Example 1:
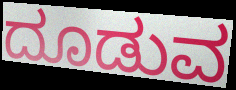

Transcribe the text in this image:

ದೂಡುವ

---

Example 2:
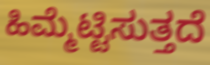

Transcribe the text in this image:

ಹಿಮ್ಮೆಟ್ಟಿಸುತ್ತದೆ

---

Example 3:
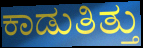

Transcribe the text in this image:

ಕಾಡುತಿತ್ತು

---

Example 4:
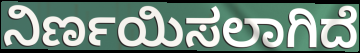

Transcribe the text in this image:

ನಿರ್ಣಯಿಸಲಾಗಿದೆ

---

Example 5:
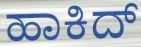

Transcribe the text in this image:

ಹಾಕಿದ್